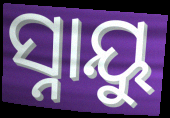
ସ୍ନାୟୁ